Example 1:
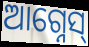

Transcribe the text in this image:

ଆଗ୍ନେସ୍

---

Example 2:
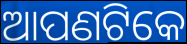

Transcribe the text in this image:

ଆପଣଟିକେ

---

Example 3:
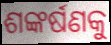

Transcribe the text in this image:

ଶଙ୍କର୍ଷଣକୁ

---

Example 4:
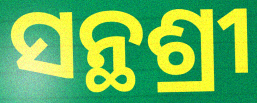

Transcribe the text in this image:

ସନ୍ଥଶ୍ରୀ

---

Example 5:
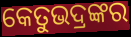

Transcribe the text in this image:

କେତୁଭଦ୍ରଙ୍କର